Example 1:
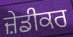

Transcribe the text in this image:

ਜ਼ੇਡੀਕਰ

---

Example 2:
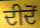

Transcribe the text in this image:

ਦੀਦੋਂ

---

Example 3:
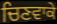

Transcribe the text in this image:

ਚਿਣਵਾਕੇ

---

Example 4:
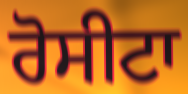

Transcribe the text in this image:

ਰੋਸੀਟਾ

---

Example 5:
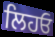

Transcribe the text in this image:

ਲਿਹਓ